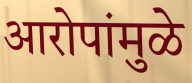
आरोपांमुळे